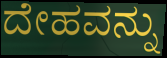
ದೇಹವನ್ನು